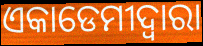
ଏକାଡେମୀଦ୍ୱାରା